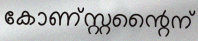
കോണ്സ്റ്റന്റൈന്